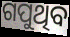
ଗପୁଥିବ